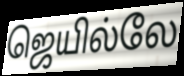
ஜெயில்லே